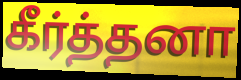
கீர்த்தனா